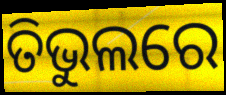
ତିଭୁଲରେ